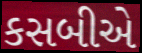
કસબીએ